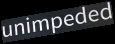
unimpeded